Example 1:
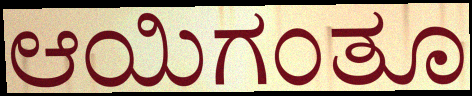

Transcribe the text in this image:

ಆಯಿಗಂತೂ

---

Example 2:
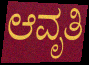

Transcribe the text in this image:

ಆವೃತಿ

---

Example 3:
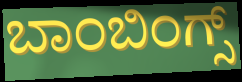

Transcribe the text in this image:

ಬಾಂಬಿಂಗ್ಸ್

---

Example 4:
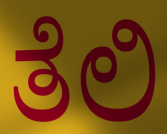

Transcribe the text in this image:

ತೆಲಿ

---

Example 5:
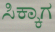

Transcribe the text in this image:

ಸಿಕ್ಕಾಗ